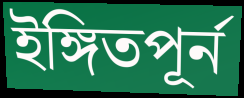
ইঙ্গিতপূর্ন